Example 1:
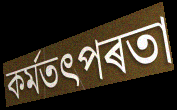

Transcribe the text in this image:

কৰ্মতৎপৰতা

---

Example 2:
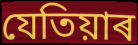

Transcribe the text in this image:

যেতিয়াৰ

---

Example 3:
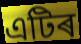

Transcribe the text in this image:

এটিৰ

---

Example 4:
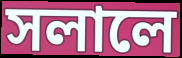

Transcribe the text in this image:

সলালে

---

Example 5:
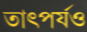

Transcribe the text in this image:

তাৎপৰ্যও